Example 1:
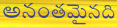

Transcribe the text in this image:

అనంతమైనది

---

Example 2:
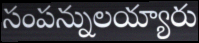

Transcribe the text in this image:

సంపన్నులయ్యారు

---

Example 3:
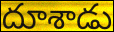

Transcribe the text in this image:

దూశాడు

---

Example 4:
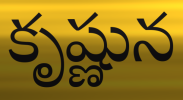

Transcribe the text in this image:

కృష్ణున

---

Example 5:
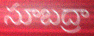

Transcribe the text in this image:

సూబద్రా